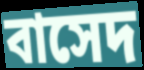
বাসেদ